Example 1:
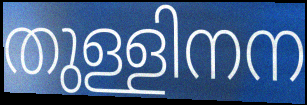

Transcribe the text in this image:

തുള്ളിനന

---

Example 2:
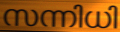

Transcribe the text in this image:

സന്നിധി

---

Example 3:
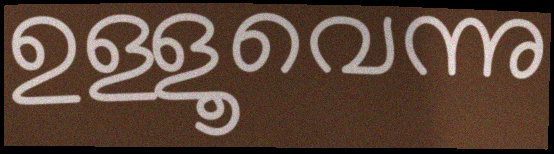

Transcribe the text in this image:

ഉള്ളൂവെന്നു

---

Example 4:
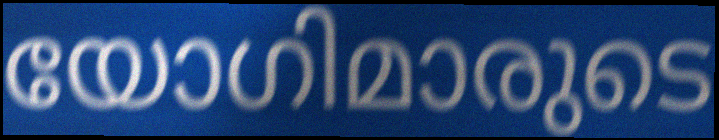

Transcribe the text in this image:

യോഗിമാരുടെ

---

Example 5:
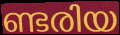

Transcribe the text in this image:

ണ്ടരിയ